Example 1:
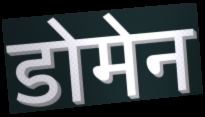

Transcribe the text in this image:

डोमेन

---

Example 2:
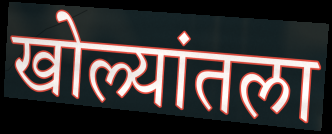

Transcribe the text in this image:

खोल्यांतला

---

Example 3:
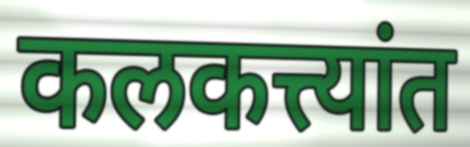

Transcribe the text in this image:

कलकत्त्यांत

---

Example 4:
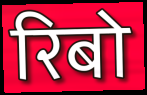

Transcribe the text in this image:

रिबो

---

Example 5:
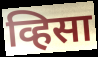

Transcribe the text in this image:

व्हिसा